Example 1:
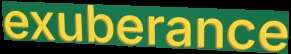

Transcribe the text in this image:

exuberance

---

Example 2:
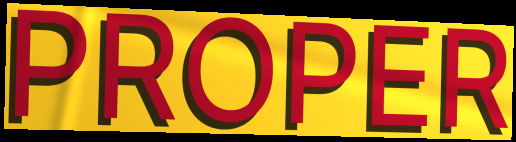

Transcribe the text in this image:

PROPER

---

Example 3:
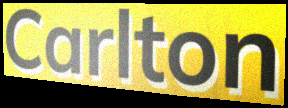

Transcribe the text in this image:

Carlton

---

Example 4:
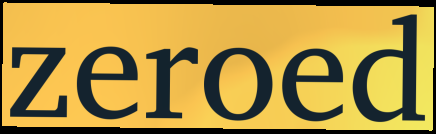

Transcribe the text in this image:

zeroed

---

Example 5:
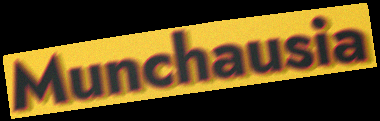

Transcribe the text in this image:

Munchausia